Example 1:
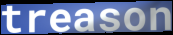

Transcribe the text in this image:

treason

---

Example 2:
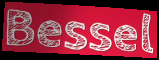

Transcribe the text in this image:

Bessel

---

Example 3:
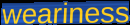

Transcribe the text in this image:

weariness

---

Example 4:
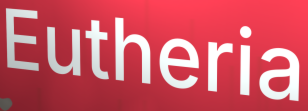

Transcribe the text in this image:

Eutheria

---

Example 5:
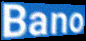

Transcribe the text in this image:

Bano